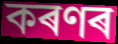
কৰণৰ